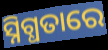
ସ୍ନିଗ୍ଧତାରେ